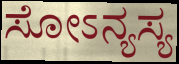
ಸೋಽನ್ಯಸ್ಯ